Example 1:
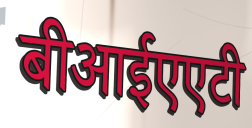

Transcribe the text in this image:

बीआईएएटी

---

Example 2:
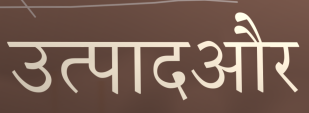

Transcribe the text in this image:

उत्पादऔर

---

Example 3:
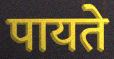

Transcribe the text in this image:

पायते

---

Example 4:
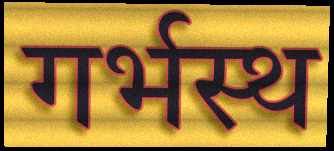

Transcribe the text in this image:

गर्भस्‍थ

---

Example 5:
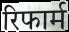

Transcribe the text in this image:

रिफार्म